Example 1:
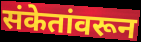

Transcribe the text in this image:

संकेतांवरून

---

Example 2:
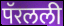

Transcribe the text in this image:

पॅरलली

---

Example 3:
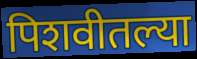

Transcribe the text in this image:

पिशवीतल्या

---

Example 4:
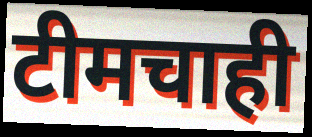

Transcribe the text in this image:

टीमचाही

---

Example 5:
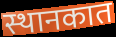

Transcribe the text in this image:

स्थानकात